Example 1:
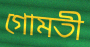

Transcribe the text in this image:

গোমতী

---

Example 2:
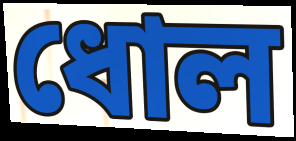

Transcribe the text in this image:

ধোল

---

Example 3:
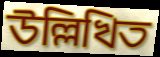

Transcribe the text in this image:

উল্লিখিত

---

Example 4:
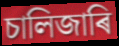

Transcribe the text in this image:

চালিজাৰি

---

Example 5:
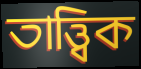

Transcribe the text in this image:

তাত্ত্বিক